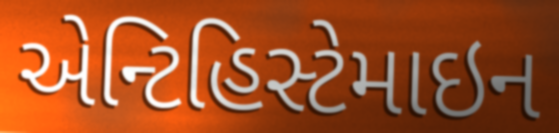
એન્ટિહિસ્ટેમાઇન